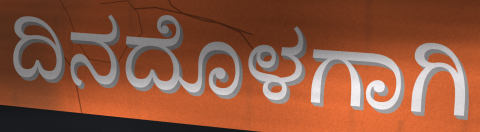
ದಿನದೊಳಗಾಗಿ